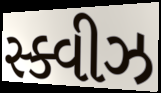
સ્ક્વીઝ